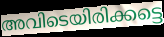
അവിടെയിരിക്കട്ടെ